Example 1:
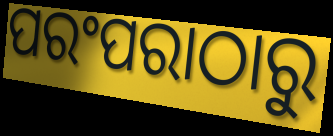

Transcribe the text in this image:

ପରଂପରାଠାରୁ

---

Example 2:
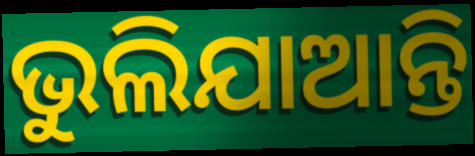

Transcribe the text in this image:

ଭୁଲିଯାଆନ୍ତି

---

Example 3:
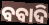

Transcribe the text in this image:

ବବାଦି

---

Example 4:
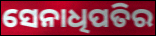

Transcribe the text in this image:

ସେନାଧିପତିର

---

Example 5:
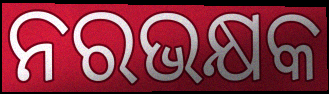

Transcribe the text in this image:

ନରଭକ୍ଷକ